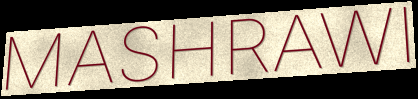
MASHRAWI